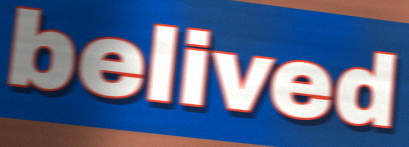
belived